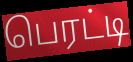
பெரட்டி